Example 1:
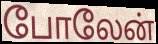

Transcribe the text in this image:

போலேன்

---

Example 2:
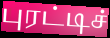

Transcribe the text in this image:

புரட்டிச்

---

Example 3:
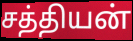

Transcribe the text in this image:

சத்தியன்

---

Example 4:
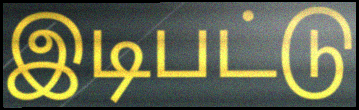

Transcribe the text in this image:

இடிபட்டு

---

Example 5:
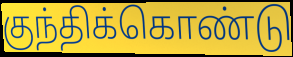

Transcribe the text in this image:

குந்திக்கொண்டு